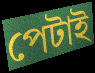
পেটাই